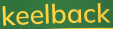
keelback